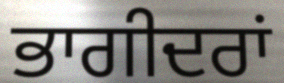
ਭਾਗੀਦਰਾਂ